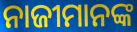
ନାଜୀମାନଙ୍କ